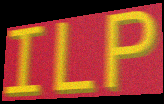
ILP